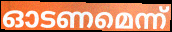
ഓടണമെന്ന്